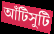
আঁটিসুটি